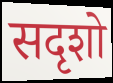
सदृशो